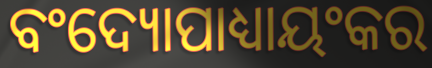
ବଂଦ୍ୟୋପାଧ୍ୟାୟଂକର